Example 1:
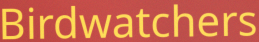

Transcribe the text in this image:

Birdwatchers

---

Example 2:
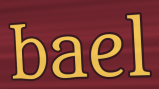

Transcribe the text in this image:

bael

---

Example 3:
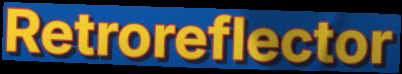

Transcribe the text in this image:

Retroreflector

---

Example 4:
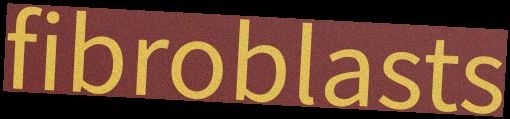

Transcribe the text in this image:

fibroblasts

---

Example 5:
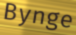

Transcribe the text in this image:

Bynge